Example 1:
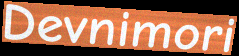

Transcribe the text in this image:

Devnimori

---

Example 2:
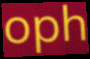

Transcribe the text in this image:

oph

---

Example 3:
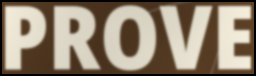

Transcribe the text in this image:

PROVE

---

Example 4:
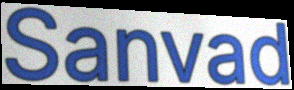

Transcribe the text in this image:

Sanvad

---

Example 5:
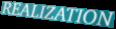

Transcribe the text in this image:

REALIZATION